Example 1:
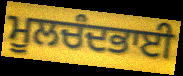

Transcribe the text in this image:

ਮੂਲਚੰਦਭਾਈ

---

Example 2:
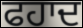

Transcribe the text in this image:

ਫਹਾਦ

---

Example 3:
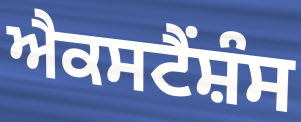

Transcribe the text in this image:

ਐਕਸਟੈਂਸ਼ੰਸ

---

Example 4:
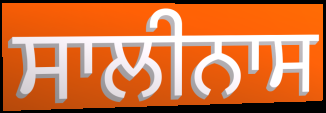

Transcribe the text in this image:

ਸਾਲੀਨਾਸ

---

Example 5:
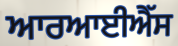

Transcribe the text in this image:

ਆਰਆਈਐੱਸ